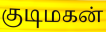
குடிமகன்